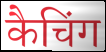
कैचिंग